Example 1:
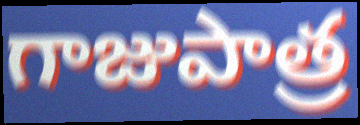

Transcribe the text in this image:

గాజుపాత్ర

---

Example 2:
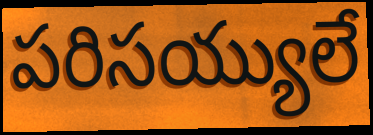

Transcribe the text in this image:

పరిసయ్యులే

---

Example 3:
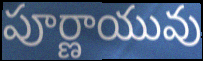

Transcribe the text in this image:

పూర్ణాయువు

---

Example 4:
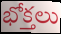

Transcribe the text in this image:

భోక్తలు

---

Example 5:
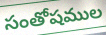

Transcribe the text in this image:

సంతోషముల